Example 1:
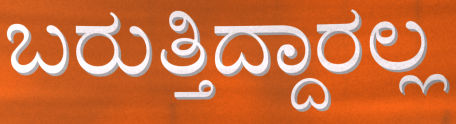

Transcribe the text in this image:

ಬರುತ್ತಿದ್ದಾರಲ್ಲ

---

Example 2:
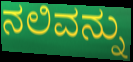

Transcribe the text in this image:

ನಲಿವನ್ನು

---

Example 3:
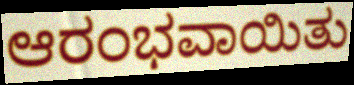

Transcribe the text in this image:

ಆರಂಭವಾಯಿತು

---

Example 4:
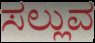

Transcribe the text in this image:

ಸಲ್ಲುವ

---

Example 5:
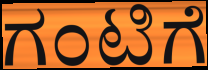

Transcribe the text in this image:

ಗಂಟಿಗೆ